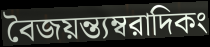
বৈজয়ন্ত্যম্বরাদিকং